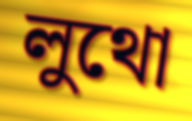
লুথো